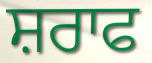
ਸ਼ਰਾਫ